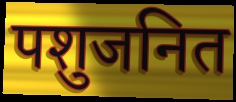
पशुजनित